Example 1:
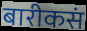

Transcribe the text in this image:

बारीकसं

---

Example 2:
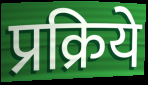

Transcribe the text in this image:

प्रक्रिये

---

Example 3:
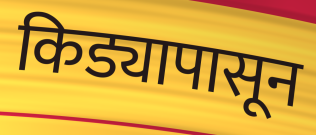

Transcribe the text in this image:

किड्यापासून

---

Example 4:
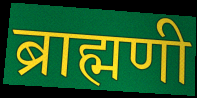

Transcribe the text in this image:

ब्राह्मणी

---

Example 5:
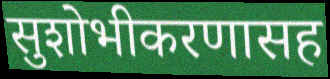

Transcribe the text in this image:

सुशोभीकरणासह